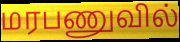
மரபணுவில்